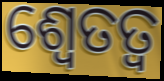
ଶ୍ୱେତତ୍ଵ